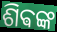
ଶିଵଙ୍କ